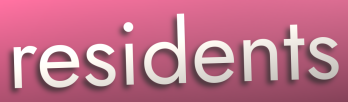
residents